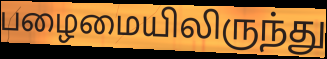
பழைமையிலிருந்து